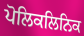
ਪੋਲਿਕਲਿਨਿਕ